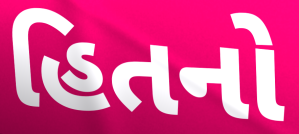
હિતનો